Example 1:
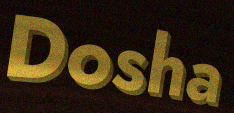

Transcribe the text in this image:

Dosha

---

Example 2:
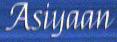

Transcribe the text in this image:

Asiyaan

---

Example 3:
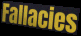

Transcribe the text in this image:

Fallacies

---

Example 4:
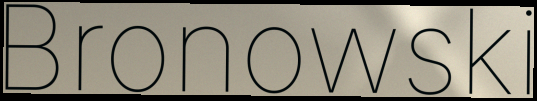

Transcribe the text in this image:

Bronowski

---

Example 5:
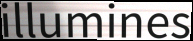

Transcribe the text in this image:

illumines